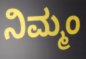
ನಿಮ್ಮಂ